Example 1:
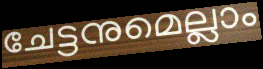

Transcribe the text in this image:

ചേട്ടനുമെല്ലാം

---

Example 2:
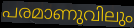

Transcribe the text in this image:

പരമാണുവിലും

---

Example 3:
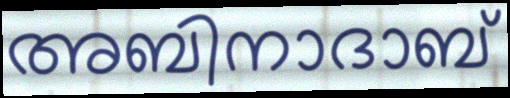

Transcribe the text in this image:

അബിനാദാബ്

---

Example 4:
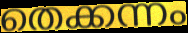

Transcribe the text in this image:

തെക്കന്നം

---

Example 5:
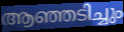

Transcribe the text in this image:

ആഞ്ഞടിച്ചും